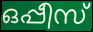
ഒപ്പീസ്